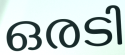
ഒരടി